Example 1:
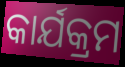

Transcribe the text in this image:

କାର୍ଯକ୍ରମ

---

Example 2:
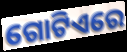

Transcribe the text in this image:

ଗୋଟିଏରେ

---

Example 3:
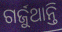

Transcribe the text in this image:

ଗର୍ଜୁଥାନ୍ତି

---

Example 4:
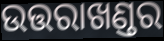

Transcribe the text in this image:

ଉତ୍ତରାଖଣ୍ଡର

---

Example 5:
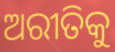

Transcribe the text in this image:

ଅରୀତିକୁ